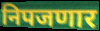
निपजणार